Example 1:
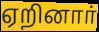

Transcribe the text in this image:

ஏறினார்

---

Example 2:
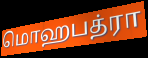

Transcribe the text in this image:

மொஹபத்ரா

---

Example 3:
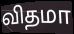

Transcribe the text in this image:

விதமா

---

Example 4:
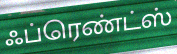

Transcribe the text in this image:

ஃப்ரெண்ட்ஸ்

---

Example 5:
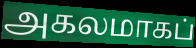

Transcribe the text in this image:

அகலமாகப்